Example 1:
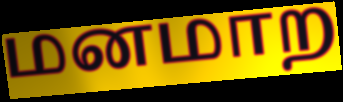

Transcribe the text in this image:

மனமாற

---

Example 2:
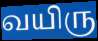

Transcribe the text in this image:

வயிரு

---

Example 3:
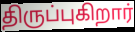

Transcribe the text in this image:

திருப்புகிறார்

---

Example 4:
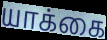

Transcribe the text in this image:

யாக்கை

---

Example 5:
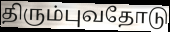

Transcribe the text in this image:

திரும்புவதோடு